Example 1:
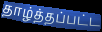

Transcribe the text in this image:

தாழ்த்தப்பட்ட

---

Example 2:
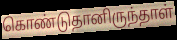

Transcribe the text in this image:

கொண்டுதானிருந்தாள்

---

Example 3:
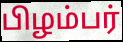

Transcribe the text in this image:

பிழம்பர்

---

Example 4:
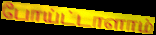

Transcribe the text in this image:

போய்ட்டாளாம்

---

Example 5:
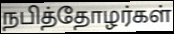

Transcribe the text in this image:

நபித்தோழர்கள்